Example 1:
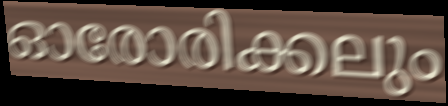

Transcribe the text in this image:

ഓരോരിക്കലും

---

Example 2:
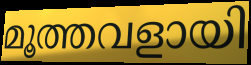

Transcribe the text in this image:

മൂത്തവളായി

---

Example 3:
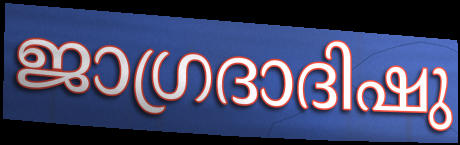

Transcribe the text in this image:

ജാഗ്രദാദിഷു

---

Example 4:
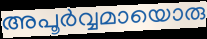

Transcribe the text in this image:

അപൂർവ്വമായൊരു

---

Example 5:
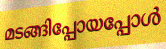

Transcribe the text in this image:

മടങ്ങിപ്പോയപ്പോൾ